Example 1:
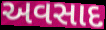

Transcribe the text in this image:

અવસાદ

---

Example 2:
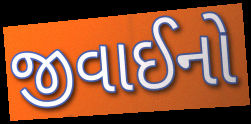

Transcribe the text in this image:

જીવાઈનો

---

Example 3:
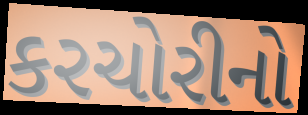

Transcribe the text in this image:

કરચોરીનો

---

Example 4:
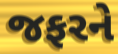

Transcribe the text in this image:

જફરને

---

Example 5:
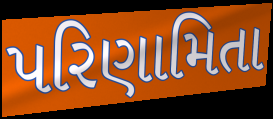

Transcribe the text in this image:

પરિણામિતા